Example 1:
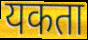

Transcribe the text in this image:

यकता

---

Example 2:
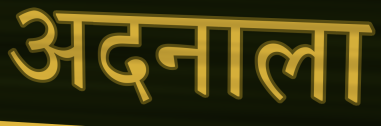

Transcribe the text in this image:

अदनाला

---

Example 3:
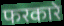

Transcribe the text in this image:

फरकारे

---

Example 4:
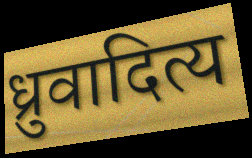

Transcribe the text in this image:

ध्रुवादित्य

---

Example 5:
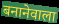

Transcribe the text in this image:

बनानेवाला